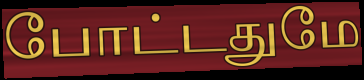
போட்டதுமே